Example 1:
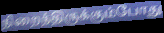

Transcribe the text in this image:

நிறைந்திருக்கும்போது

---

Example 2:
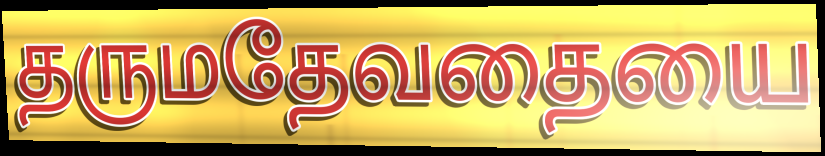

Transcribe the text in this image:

தருமதேவதையை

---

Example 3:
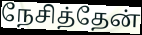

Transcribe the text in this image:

நேசித்தேன்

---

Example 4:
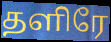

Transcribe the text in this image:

தளிரே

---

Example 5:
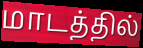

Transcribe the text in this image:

மாடத்தில்